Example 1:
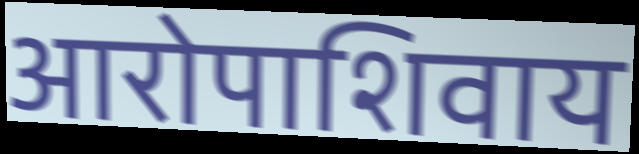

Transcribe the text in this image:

आरोपाशिवाय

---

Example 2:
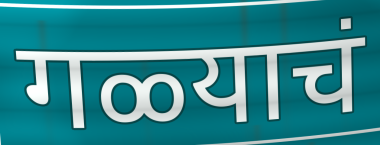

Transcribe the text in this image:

गळ्याचं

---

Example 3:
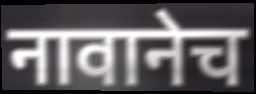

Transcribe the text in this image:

नावानेच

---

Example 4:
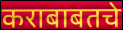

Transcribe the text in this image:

कराबाबतचे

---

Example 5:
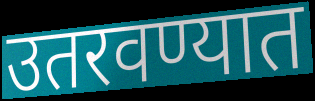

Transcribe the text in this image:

उतरवण्यात